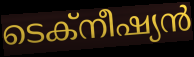
ടെക്നീഷ്യൻ